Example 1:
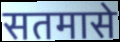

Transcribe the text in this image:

सतमासे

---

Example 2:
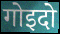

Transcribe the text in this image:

गोइदो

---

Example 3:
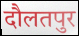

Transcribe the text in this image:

दौलतपुर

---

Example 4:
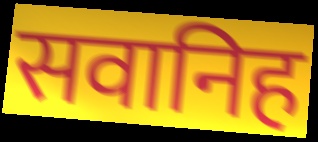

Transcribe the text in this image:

सवानिह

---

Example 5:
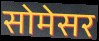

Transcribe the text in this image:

सोमेसर